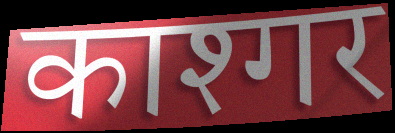
काश्गर